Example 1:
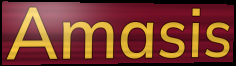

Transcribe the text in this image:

Amasis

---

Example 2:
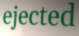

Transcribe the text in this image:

ejected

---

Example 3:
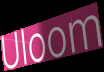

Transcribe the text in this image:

Uloom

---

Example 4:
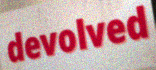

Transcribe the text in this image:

devolved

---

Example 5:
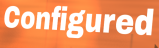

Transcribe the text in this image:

Configured